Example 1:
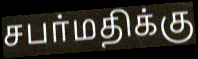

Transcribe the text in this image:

சபர்மதிக்கு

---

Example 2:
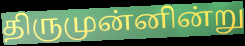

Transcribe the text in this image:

திருமுன்னின்று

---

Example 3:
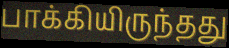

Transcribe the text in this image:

பாக்கியிருந்தது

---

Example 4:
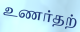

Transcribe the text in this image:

உணர்தற்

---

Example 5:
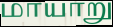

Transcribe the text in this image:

மாயாறு